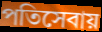
পতিসেবায়